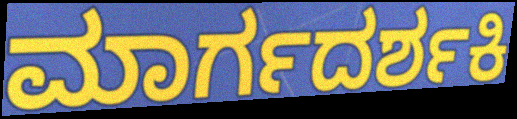
ಮಾರ್ಗದರ್ಶಕಿ